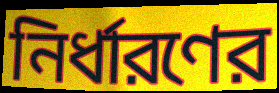
নির্ধারণের